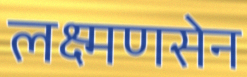
लक्ष्मणसेन